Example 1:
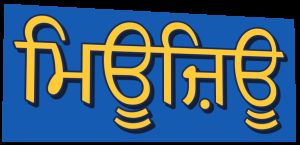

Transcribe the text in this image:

ਮਿਊਜ਼ਿਊ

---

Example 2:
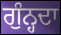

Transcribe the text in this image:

ਗੁੰਨ੍ਹਦਾ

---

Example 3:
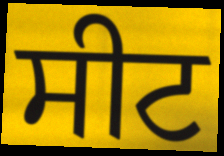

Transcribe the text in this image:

ਸੀਟ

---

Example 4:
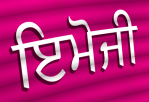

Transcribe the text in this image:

ਇਮੋਜੀ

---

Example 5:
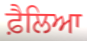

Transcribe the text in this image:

ਫ਼ੈਲਿਆ